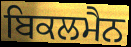
ਬਿਕਲਮੈਨ